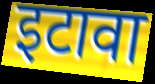
इटावा